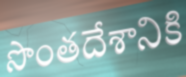
సొంతదేశానికి